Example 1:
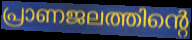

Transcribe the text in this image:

പ്രാണജലത്തിന്റെ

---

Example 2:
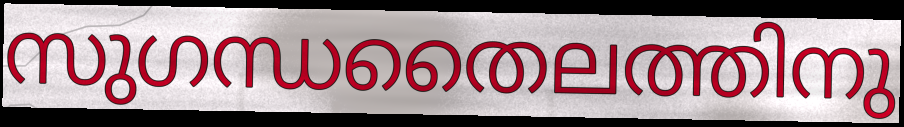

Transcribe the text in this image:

സുഗന്ധതൈലത്തിനു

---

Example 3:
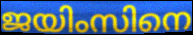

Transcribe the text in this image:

ജയിംസിനെ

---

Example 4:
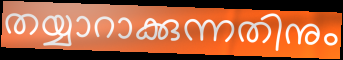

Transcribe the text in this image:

തയ്യാറാക്കുന്നതിനും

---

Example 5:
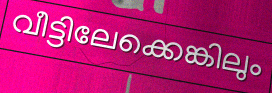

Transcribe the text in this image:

വീട്ടിലേക്കെങ്കിലും